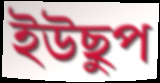
ইউছুপ